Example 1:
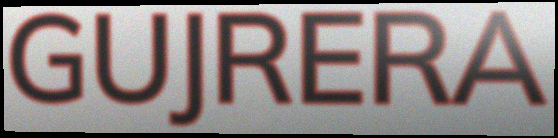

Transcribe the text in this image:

GUJRERA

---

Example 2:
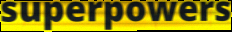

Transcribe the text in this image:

superpowers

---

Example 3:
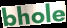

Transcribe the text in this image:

bhole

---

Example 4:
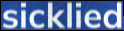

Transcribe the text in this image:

sicklied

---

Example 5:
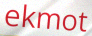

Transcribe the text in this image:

ekmot